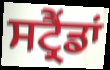
ਸਟ੍ਰੈਂਡਾਂ